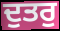
ਦੁਤਰੁ